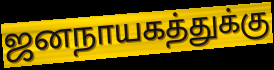
ஜனநாயகத்துக்கு